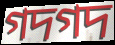
গদগদ